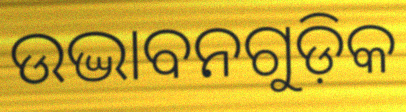
ଉଦ୍ଭାବନଗୁଡ଼ିକ